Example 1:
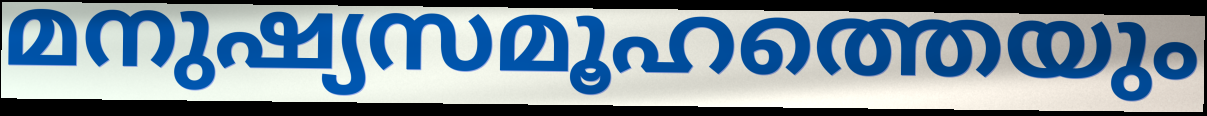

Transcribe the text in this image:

മനുഷ്യസമൂഹത്തെയും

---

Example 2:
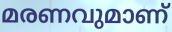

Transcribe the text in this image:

മരണവുമാണ്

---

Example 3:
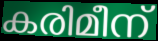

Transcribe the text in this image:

കരിമീന്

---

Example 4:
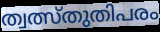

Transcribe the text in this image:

ത്വത്സ്തുതിപരം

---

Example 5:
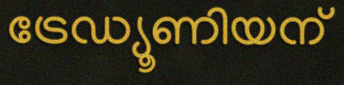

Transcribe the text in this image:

ട്രേഡ്യൂണിയന്